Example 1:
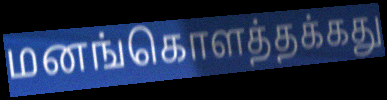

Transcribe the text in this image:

மனங்கொளத்தக்கது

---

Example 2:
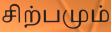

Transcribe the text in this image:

சிற்பமும்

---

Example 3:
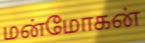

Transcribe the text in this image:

மன்மோகன்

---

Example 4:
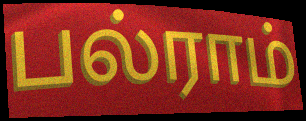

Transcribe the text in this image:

பல்ராம்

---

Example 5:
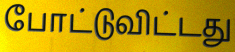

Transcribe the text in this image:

போட்டுவிட்டது